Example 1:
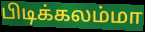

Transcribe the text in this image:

பிடிக்கலம்மா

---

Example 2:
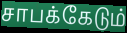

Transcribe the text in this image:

சாபக்கேடும்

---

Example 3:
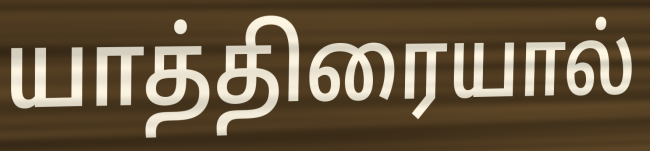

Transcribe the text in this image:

யாத்திரையால்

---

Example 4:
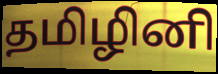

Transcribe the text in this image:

தமிழினி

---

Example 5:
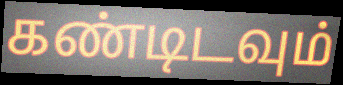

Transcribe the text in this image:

கண்டிடவும்